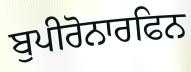
ਬੁਪੀਰੋਨਾਰਫਿਨ